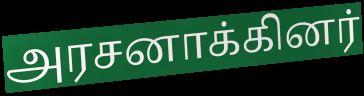
அரசனாக்கினர்